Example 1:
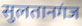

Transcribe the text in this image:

सुलतानगंज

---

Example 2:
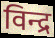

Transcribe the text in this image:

विन्द्र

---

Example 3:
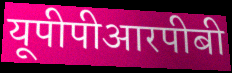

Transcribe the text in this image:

यूपीपीआरपीबी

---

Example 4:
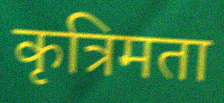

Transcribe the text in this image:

कृत्रिमता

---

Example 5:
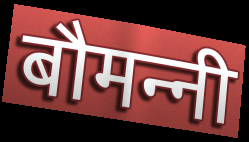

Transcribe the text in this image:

बौमन्नी